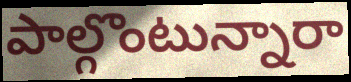
పాల్గొంటున్నారా